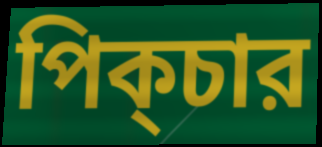
পিক্চার